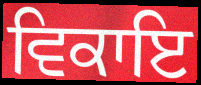
ਵਿਕਾਇ